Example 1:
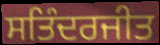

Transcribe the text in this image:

ਸਤਿੰਦਰਜੀਤ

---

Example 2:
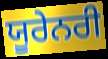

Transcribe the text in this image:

ਯੂਰੇਨਰੀ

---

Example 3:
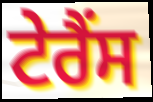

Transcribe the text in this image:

ਟੇਰੈਂਸ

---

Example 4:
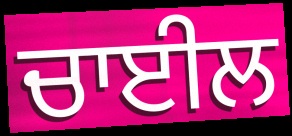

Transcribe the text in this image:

ਚਾਈਲ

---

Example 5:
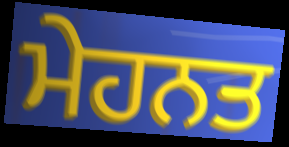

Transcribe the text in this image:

ਮੇਹਨਤ